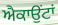
ਐਕਾਉਂਟਾਂ